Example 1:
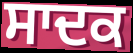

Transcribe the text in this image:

ਸਾਦਕ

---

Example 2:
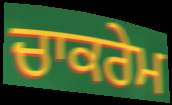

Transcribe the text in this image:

ਚਾਕਰੇਮ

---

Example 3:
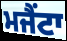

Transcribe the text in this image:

ਮਜੈਂਟਾ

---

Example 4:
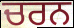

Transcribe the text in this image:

ਚਰਨ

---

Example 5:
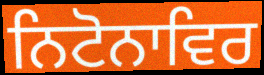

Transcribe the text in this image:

ਨਿਟੋਨਾਵਿਰ